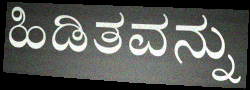
ಹಿಡಿತವನ್ನು